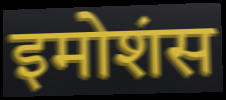
इमोशंस